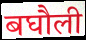
बघौली